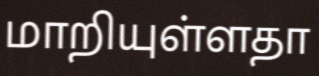
மாறியுள்ளதா